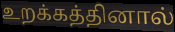
உறக்கத்தினால்